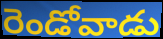
రెండోవాడు